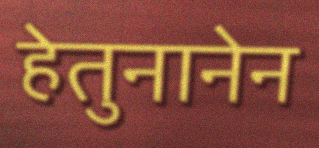
हेतुनानेन